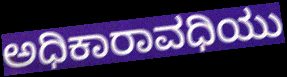
ಅಧಿಕಾರಾವಧಿಯು